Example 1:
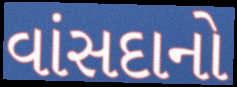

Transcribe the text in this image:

વાંસદાનો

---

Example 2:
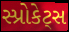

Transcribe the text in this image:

સ્પ્રોકેટ્સ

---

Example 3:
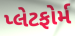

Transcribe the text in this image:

પ્લેટફોર્મ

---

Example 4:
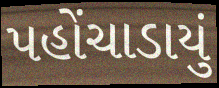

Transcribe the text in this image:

પહોંચાડાયું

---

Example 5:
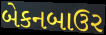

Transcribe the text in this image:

બેકનબાઉર